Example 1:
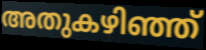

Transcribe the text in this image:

അതുകഴിഞ്ഞ്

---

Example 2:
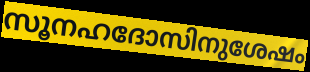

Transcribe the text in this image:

സൂനഹദോസിനുശേഷം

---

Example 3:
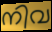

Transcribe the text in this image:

നിവ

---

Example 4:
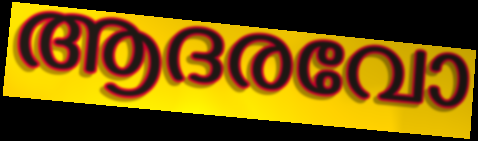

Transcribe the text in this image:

ആദരവോ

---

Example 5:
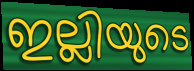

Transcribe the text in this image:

ഇല്ലിയുടെ